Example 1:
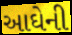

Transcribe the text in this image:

આઘેની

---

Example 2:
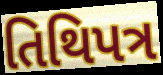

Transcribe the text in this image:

તિથિપત્ર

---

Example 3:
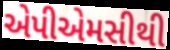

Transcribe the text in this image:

એપીએમસીથી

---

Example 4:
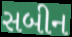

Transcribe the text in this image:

સબીન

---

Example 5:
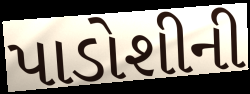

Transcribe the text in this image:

પાડોશીની